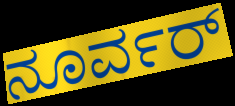
ನೂರ್ವರ್